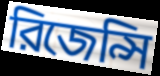
রিজেন্সি